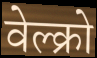
वेल्क्रो